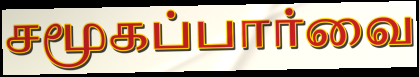
சமூகப்பார்வை